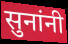
सुनांनी